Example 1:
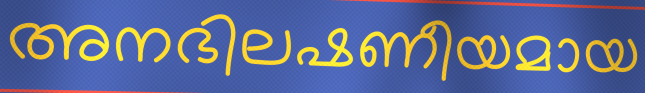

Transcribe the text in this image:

അനഭിലഷണീയമായ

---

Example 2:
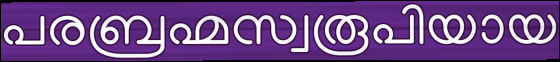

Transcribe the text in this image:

പരബ്രഹ്മസ്വരൂപിയായ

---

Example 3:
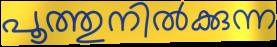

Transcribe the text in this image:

പൂത്തുനിൽക്കുന്ന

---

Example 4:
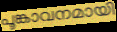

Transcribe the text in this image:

പൂങ്കാവനമായി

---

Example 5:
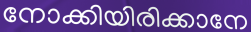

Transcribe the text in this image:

നോക്കിയിരിക്കാനേ